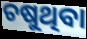
ଚଷୁଥିବା